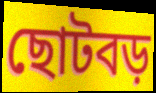
ছোটবড়